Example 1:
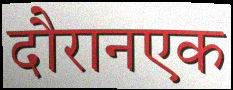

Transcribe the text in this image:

दौरानएक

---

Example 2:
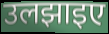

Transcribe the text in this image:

उलझाइए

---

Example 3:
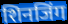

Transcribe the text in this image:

शिनजिंग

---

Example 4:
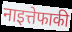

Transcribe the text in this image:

नाइत्तेफाकी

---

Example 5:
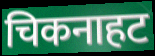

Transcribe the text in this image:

चिकनाहट